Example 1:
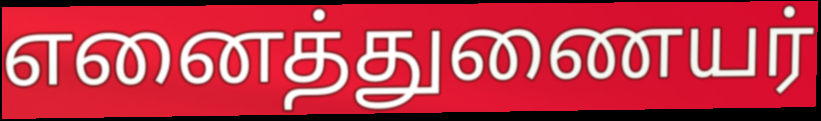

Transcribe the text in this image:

எனைத்துணையர்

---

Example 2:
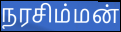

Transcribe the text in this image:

நரசிம்மன்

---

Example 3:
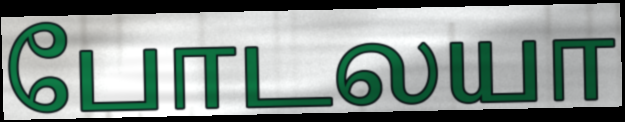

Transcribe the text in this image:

போடலயா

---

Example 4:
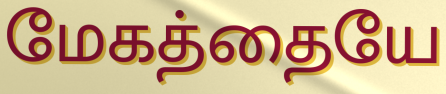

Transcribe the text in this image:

மேகத்தையே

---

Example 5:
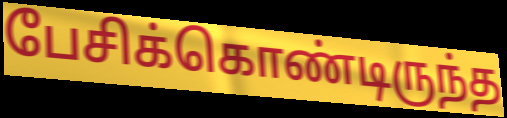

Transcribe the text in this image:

பேசிக்கொண்டிருந்த